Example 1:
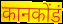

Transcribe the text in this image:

कानकोंडं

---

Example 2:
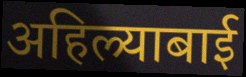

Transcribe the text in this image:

अहिल्याबाई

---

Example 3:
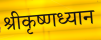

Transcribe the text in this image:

श्रीकृष्णध्यान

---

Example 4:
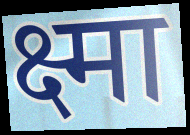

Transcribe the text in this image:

क्ष्मा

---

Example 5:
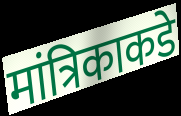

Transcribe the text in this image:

मांत्रिकाकडे